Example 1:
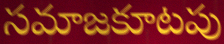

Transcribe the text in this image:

సమాజకూటపు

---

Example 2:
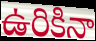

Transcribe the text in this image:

ఉరికినా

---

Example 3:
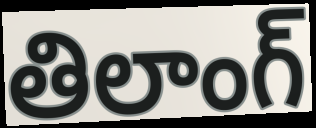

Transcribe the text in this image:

తిలాంగ్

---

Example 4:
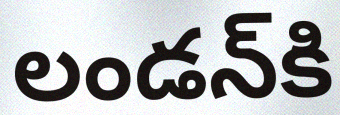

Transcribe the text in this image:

లండన్‌కి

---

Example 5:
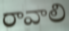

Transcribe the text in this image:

రావాలి